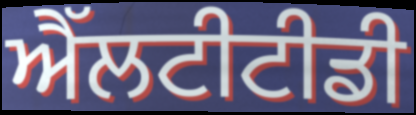
ਐੱਲਟੀਟੀਡੀ